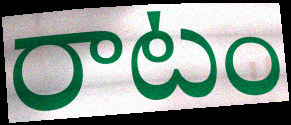
రాటం